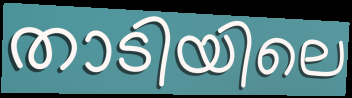
താടിയിലെ